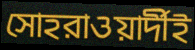
সোহরাওয়ার্দীই